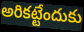
అరికట్టేందుకు